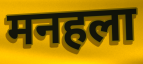
मनहला